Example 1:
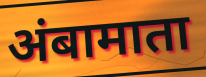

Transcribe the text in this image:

अंबामाता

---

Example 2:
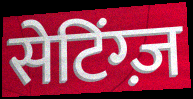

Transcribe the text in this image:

सेटिंग्ज़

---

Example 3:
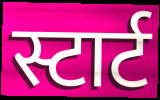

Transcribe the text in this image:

स्टार्ट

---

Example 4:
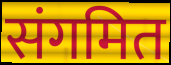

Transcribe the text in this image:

संगमित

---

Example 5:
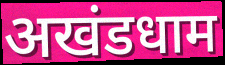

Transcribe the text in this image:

अखंडधाम